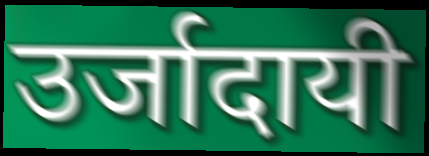
उर्जादायी